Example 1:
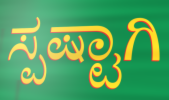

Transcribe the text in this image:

ಸ್ಪಷ್ಟಾಗಿ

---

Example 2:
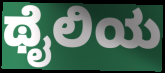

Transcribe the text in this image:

ಥೈಲಿಯ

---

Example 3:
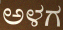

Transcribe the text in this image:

ಅಳಗ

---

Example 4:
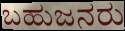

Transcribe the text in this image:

ಬಹುಜನರು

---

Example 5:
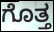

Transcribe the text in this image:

ಗೊತ್ತ